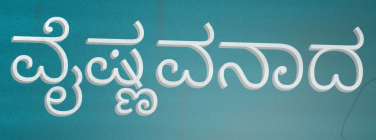
ವೈಷ್ಣವನಾದ